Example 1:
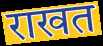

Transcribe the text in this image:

राखत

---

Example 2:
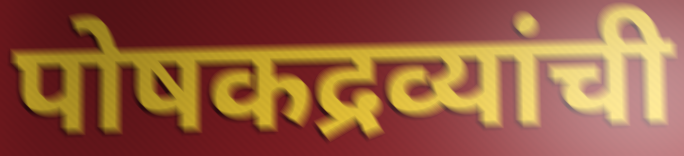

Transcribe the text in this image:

पोषकद्रव्यांची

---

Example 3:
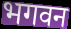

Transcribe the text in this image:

भगवन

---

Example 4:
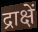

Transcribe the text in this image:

द्राक्षें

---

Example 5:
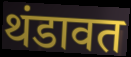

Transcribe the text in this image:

थंडावत